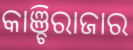
କାଞ୍ଚିରାଜାର